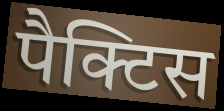
पैक्टिस